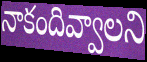
నాకందివ్వాలని